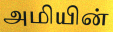
அமியின்